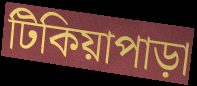
টিকিয়াপাড়া